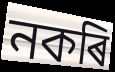
নকৰি